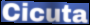
Cicuta